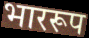
भाररूप